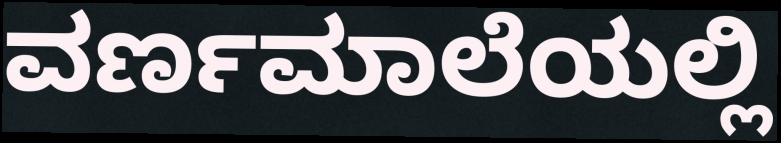
ವರ್ಣಮಾಲೆಯಲ್ಲಿ